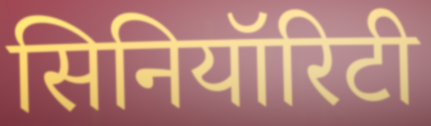
सिनियॉरिटी